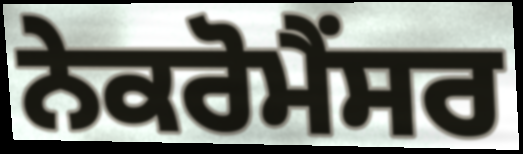
ਨੇਕਰੋਮੈਂਸਰ